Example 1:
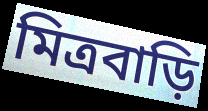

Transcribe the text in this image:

মিত্রবাড়ি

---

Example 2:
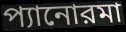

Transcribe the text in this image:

প্যানোরমা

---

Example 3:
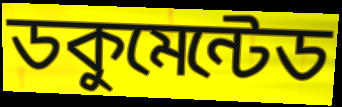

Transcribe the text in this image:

ডকুমেন্টেড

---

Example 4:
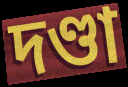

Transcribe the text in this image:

দণ্ডা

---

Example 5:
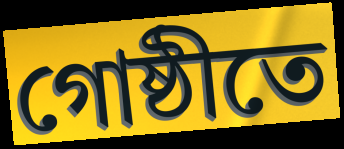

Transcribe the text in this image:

গোষ্ঠীতে